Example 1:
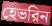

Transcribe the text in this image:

হেভরিন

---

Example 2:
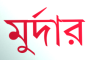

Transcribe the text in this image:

মুর্দার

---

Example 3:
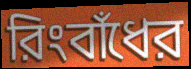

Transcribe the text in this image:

রিংবাঁধের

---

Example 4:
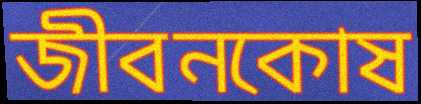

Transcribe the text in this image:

জীবনকোষ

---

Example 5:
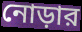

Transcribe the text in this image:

নোড়ার